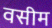
वसीम